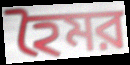
হৈমর